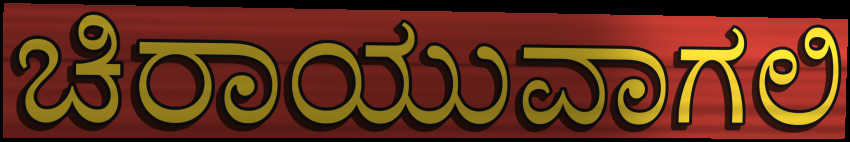
ಚಿರಾಯುವಾಗಲಿ